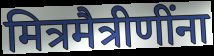
मित्रमैत्रीणींना